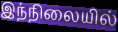
இந்நிலையில்